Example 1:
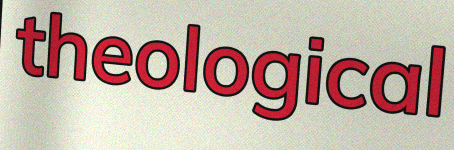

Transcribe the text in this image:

theological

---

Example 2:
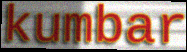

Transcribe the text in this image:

kumbar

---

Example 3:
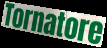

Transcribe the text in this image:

Tornatore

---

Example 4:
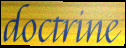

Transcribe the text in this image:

doctrine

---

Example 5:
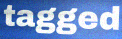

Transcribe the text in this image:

tagged